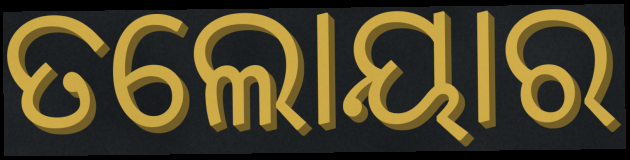
ତଲୋୟାର